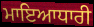
ਮਾਇਆਧਾਰੀ